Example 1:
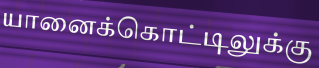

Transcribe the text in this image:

யானைக்கொட்டிலுக்கு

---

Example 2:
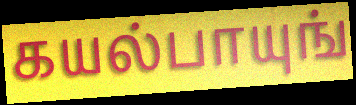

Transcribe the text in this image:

கயல்பாயுங்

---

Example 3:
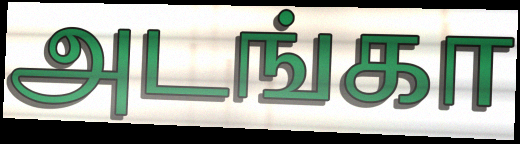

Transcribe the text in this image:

அடங்கா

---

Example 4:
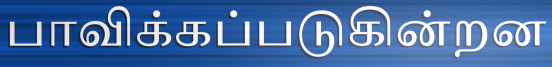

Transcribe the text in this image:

பாவிக்கப்படுகின்றன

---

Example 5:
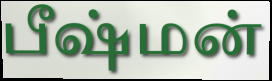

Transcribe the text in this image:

பீஷ்மன்